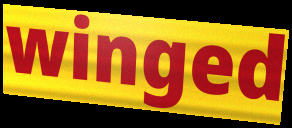
winged